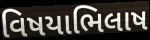
વિષયાભિલાષ